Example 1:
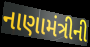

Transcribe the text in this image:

નાણામંત્રીની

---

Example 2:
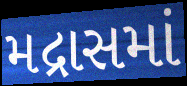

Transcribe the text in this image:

મદ્રાસમાં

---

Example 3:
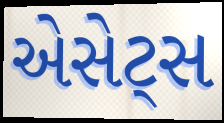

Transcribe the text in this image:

એસેટ્સ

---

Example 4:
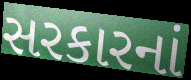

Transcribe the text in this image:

સરકારનાં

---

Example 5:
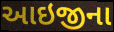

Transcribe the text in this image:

આઇજીના